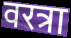
वरत्रा